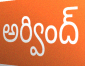
అర్వింద్